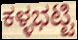
ಕಳ್ಳಭಟ್ಟಿ